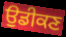
ਉਡੀਕਣ